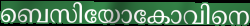
ബെസിയോകോവിനെ